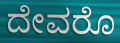
ದೇವರೊ